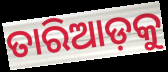
ତାରିଆଡ଼କୁ